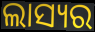
ଲାସ୍ୟର